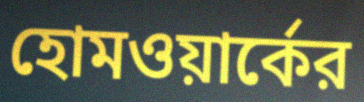
হোমওয়ার্কের